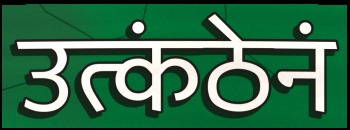
उत्कंठेनं